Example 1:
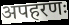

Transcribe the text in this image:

अपहरणः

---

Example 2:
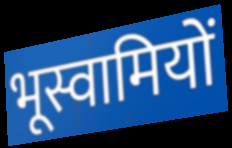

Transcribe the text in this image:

भूस्वामियों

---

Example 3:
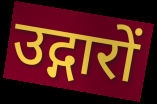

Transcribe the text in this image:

उद्गारों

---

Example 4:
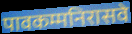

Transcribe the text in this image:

पावकम्मनिरासवे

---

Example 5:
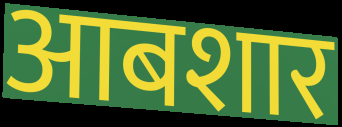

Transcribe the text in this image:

आबशार